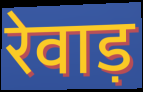
रेवाड़